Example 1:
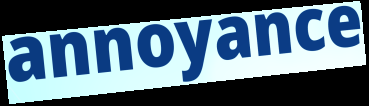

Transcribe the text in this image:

annoyance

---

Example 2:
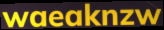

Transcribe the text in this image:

waeaknzw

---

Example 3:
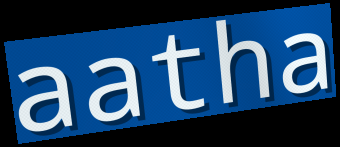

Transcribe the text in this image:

aatha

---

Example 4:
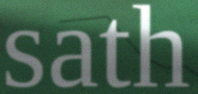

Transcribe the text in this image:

sath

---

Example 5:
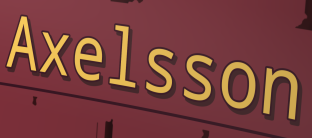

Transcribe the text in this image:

Axelsson